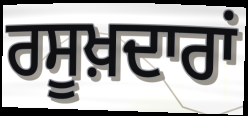
ਰਸੂਖ਼ਦਾਰਾਂ